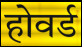
होवर्ड